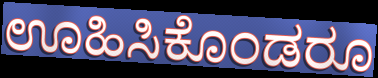
ಊಹಿಸಿಕೊಂಡರೂ